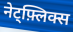
नेट्फ़्लिक्स